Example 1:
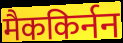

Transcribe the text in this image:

मैककिर्नन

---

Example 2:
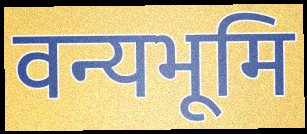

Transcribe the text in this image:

वन्यभूमि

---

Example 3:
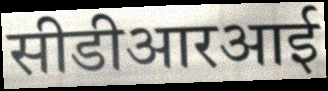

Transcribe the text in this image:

सीडीआरआई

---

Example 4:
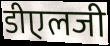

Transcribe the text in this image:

डीएलजी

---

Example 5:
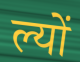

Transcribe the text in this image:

ल्यों